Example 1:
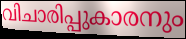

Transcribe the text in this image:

വിചാരിപ്പുകാരനും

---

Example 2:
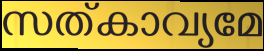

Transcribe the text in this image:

സത്കാവ്യമേ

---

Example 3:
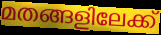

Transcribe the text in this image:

മതങ്ങളിലേക്ക്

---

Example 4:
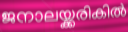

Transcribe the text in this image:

ജനാലയ്ക്കരികിൽ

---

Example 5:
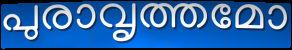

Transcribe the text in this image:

പുരാവൃത്തമോ